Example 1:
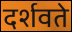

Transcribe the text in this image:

दर्शवते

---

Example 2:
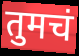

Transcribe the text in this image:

तुमचं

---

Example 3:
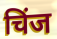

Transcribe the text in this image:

चिंज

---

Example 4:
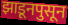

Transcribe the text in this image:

झाडूनपुसून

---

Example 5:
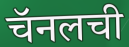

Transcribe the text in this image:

चॅनलची